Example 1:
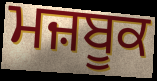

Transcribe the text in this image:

ਮਜ਼ਬੂਕ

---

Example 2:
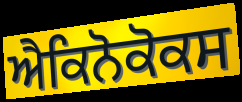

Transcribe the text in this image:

ਐਕਿਨੋਕੋਕਸ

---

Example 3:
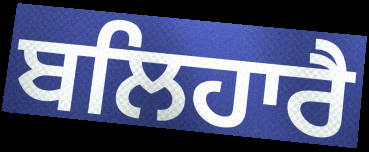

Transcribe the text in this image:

ਬਲਿਹਾਰੈ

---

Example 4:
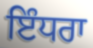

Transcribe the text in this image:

ਇੰਧਰਾ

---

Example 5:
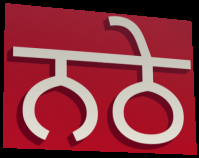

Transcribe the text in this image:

ਨਠੇ